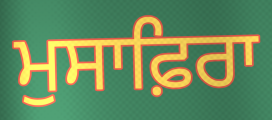
ਮੁਸਾਫ਼ਿਰਾ